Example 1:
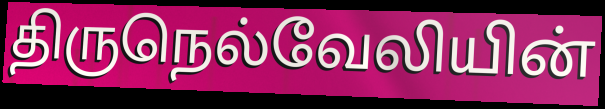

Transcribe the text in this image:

திருநெல்வேலியின்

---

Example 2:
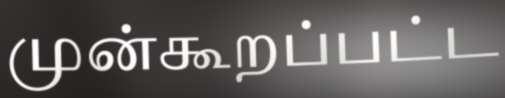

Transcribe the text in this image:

முன்கூறப்பட்ட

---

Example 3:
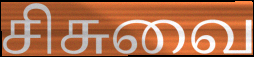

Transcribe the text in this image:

சிசுவை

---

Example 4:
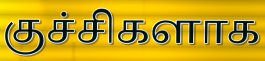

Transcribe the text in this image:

குச்சிகளாக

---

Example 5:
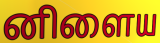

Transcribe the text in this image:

னிளைய